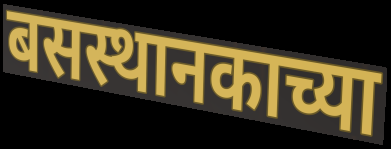
बसस्थानकाच्या